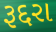
રૂદ્દરા